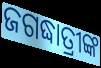
ଜଗଦ୍ଧାତ୍ରୀଙ୍କ